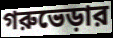
গরুভেড়ার